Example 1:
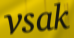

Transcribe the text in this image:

vsak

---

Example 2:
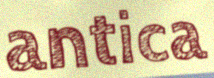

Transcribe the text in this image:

antica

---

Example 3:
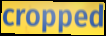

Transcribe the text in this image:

cropped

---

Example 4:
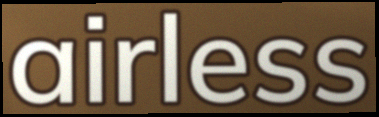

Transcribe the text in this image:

airless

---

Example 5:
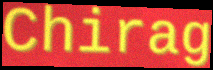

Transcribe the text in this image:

Chirag